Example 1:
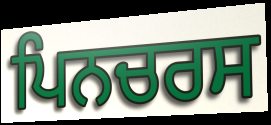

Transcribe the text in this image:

ਪਿਨਚਰਸ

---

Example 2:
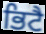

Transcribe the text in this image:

ਭਿਟੈ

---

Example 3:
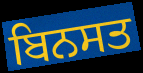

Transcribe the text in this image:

ਬਿਨਸਤ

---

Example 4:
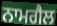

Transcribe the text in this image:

ਨਾਮਗੈਲ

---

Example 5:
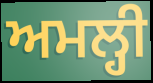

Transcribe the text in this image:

ਅਮਲ੍ਹੀ